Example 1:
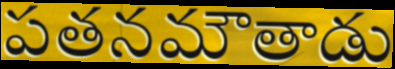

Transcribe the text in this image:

పతనమౌతాడు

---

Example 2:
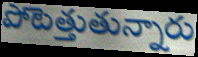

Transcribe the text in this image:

పోటెత్తుతున్నారు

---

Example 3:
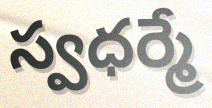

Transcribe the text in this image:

స్వధర్మే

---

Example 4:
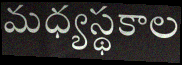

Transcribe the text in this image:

మధ్యస్థకాల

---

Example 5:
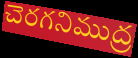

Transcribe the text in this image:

చెరగనిముద్ర